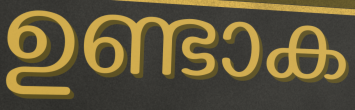
ഉണ്ടാക